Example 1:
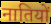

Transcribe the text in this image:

नातियों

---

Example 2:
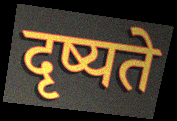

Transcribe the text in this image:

दृष्यते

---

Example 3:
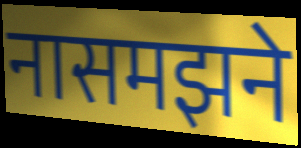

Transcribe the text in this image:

नासमझने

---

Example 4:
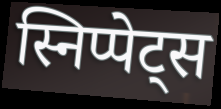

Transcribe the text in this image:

स्निप्पेट्स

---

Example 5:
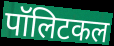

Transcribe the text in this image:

पॉलिटकल